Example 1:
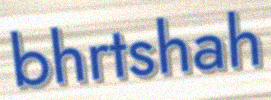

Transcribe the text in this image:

bhrtshah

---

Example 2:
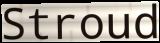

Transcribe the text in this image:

Stroud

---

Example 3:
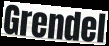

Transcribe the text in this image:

Grendel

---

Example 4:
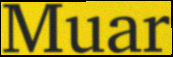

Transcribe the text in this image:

Muar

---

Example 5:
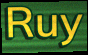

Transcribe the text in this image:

Ruy